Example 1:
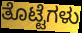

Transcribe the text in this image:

ತೊಟ್ಟೆಗಳು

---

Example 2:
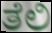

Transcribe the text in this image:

ತೆಲಿ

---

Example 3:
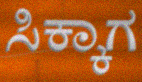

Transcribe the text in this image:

ಸಿಕ್ಕಾಗ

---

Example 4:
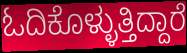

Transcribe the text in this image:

ಓದಿಕೊಳ್ಳುತ್ತಿದ್ದಾರೆ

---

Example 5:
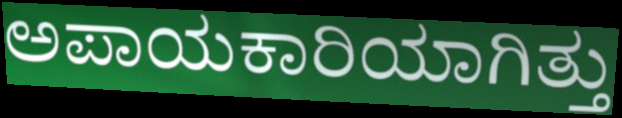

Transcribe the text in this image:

ಅಪಾಯಕಾರಿಯಾಗಿತ್ತು